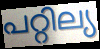
പറ്റില്യ